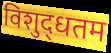
विशुद्धतम